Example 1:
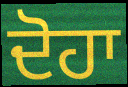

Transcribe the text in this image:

ਦੋਹਾ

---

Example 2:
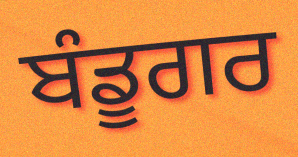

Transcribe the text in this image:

ਬੰਡੂਗਰ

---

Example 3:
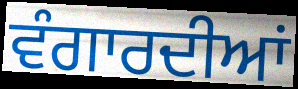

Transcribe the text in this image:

ਵੰਗਾਰਦੀਆਂ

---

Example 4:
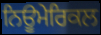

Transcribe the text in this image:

ਨਿਊਮੇਰਿਕਲ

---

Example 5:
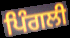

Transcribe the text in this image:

ਪਿੰਗਲੀ